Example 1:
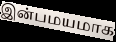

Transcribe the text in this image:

இன்பமயமாக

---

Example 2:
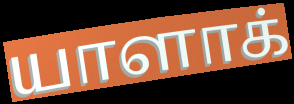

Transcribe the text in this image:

யாளாக்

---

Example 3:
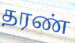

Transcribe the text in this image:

தரண்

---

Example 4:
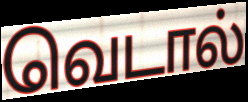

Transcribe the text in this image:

வெடால்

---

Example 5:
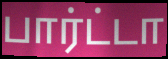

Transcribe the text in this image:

பார்ட்டா